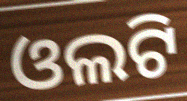
ଓଲଟି